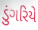
ડુંગરિયે